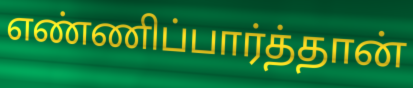
எண்ணிப்பார்த்தான்